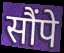
सौंपे